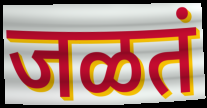
जळतं